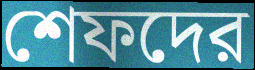
শেফদের